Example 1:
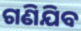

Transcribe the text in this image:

ଗଣିଯିବ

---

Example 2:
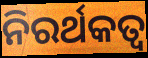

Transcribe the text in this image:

ନିରର୍ଥକତ୍ୱ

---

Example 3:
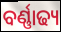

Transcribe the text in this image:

ବର୍ଣ୍ଣାଢ୍ୟ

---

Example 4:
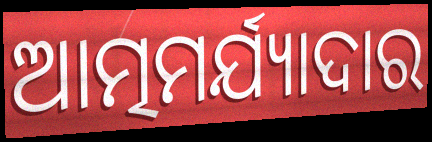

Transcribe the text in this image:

ଆତ୍ମମର୍ଯ୍ୟାଦାର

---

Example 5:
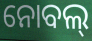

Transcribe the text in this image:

ନୋବଲ୍